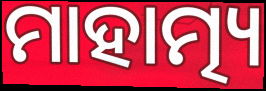
ମାହାତ୍ମ୍ୟ